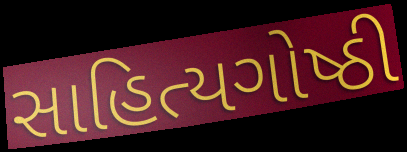
સાહિત્યગોષ્ઠી